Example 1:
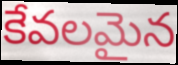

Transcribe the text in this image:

కేవలమైన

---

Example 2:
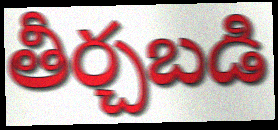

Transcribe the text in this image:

తీర్చబడి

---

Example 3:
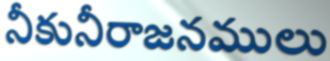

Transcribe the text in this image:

నీకునీరాజనములు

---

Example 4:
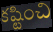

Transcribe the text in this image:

కష్టించి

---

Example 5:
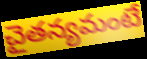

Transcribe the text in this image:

చైతన్యమంటే